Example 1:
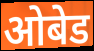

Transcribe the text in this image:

ओबेड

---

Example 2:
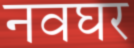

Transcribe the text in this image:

नवघर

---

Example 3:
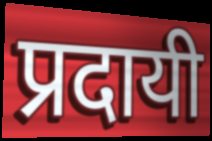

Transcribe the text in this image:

प्रदायी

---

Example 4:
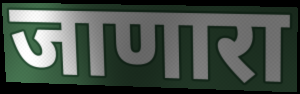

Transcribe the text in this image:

जाणारा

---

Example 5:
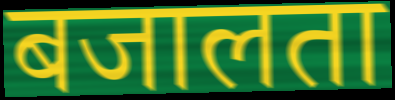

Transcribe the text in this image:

बजालता